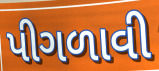
પીગળાવી